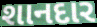
શાનદાર